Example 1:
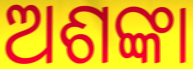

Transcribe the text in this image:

ଅଶଙ୍କା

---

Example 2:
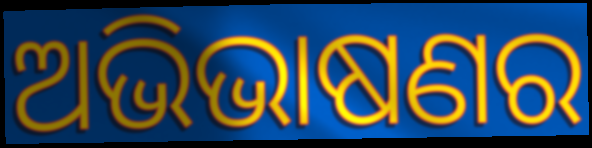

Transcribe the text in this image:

ଅଭିଭାଷଣର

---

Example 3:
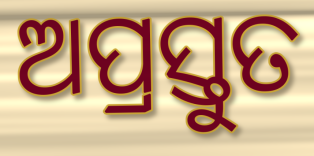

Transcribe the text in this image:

ଅପ୍ରସ୍ତୁତ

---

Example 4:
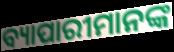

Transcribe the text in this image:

ବ୍ୟାପାରୀମାନଙ୍କ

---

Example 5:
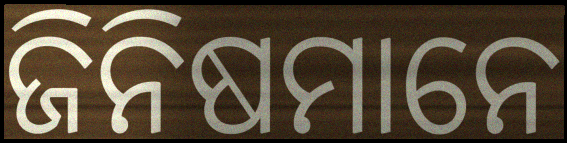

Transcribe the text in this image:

ଜିନିଷମାନେ